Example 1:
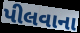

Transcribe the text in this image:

પીલવાના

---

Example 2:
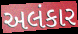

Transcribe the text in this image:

અલંકાર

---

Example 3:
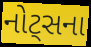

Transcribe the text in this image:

નોટ્સના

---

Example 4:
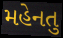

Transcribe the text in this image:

મહેનતુ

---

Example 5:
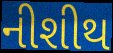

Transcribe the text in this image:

નીશીથ